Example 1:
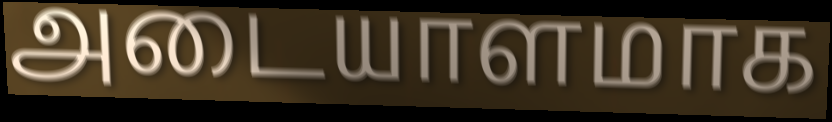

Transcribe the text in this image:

அடையாளமாக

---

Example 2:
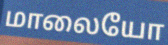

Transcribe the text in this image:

மாலையோ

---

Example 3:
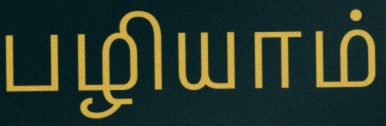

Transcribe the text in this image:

பழியாம்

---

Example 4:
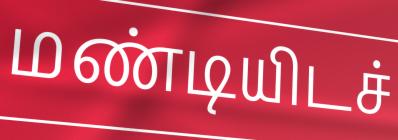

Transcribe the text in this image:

மண்டியிடச்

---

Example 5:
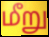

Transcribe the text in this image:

மீறு